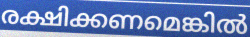
രക്ഷിക്കണമെങ്കിൽ